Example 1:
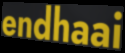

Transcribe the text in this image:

endhaai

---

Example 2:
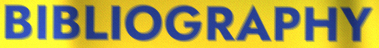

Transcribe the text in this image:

BIBLIOGRAPHY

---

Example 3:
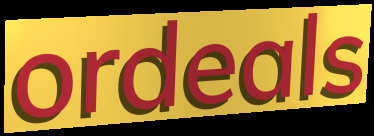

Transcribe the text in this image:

ordeals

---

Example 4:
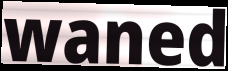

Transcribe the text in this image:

waned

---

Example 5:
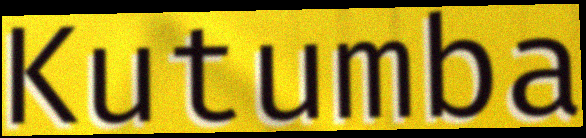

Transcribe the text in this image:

Kutumba